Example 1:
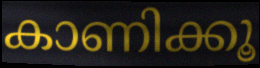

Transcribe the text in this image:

കാണിക്കൂ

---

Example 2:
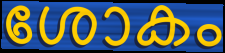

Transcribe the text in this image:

ശോകം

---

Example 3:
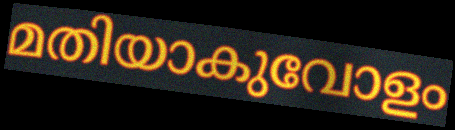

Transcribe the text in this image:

മതിയാകുവോളം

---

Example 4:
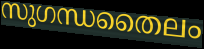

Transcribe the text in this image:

സുഗന്ധതൈലം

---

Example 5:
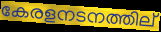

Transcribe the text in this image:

കേരളനടനത്തില്